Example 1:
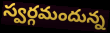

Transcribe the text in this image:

స్వర్గమందున్న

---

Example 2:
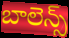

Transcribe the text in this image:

బాలెన్స్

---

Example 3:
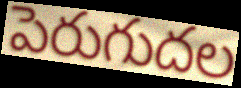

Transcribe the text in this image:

పెరుగుదల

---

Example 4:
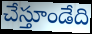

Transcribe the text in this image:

చేస్తూండేది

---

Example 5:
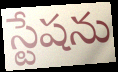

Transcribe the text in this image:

స్టేషను